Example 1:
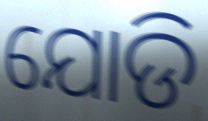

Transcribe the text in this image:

ଯୋଡି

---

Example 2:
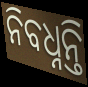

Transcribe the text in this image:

ନିବଧ୍ନନ୍ତି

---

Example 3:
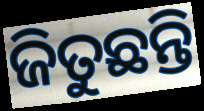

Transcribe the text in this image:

ଜିତୁଛନ୍ତି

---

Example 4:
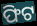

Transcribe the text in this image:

ଫିଟ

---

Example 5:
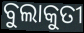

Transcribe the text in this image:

ବୁଲାକୁତୀ